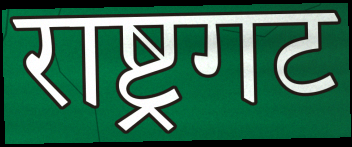
राष्ट्रगट